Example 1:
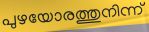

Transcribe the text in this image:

പുഴയോരത്തുനിന്ന്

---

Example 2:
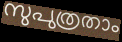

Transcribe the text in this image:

സുപുത്രതാം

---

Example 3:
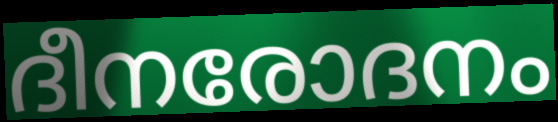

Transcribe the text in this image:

ദീനരോദനം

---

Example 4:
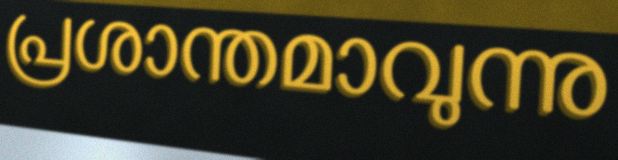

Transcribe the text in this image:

പ്രശാന്തമാവുന്നു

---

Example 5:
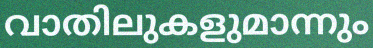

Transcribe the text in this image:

വാതിലുകളുമാന്നും